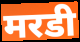
मरडी